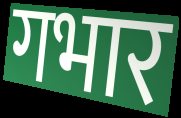
गभार